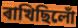
ৰাখিছিলোঁ